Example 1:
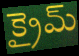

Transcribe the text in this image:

క్రైమ్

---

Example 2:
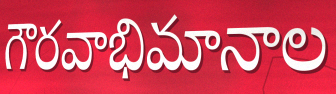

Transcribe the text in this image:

గౌరవాభిమానాల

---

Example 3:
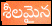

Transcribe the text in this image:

శీలమైన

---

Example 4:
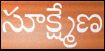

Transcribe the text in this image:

సూక్ష్మేణ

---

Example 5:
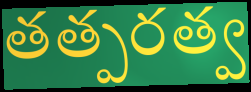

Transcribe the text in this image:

తత్పరత్వ